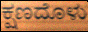
ಕ್ಷಣದೊಳು